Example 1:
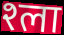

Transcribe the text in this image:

श्ला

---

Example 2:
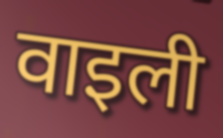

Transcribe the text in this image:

वाइली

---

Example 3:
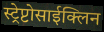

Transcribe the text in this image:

स्ट्रेप्टोसाईक्लिन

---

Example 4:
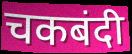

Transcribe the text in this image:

चकबंदी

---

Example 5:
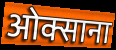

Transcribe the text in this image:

ओक्साना